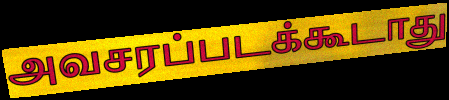
அவசரப்படக்கூடாது